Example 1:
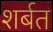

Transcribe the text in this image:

शर्बत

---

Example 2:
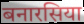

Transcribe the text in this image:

बनारसिया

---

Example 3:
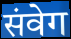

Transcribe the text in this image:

संवेग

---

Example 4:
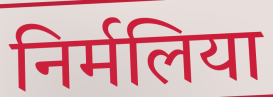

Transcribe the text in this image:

निर्मलिया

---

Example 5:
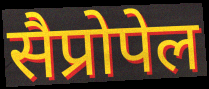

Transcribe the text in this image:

सैप्रोपेल